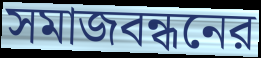
সমাজবন্ধনের